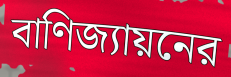
বাণিজ্যায়নের